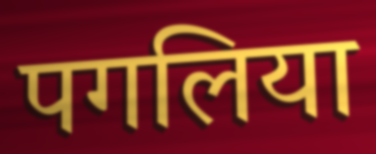
पगलिया